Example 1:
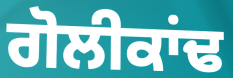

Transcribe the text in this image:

ਗੋਲੀਕਾਂਢ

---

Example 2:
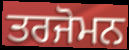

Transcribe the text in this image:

ਤਰਜੋਮਨ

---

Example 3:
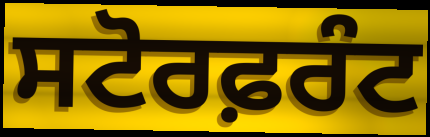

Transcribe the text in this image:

ਸਟੋਰਫ਼ਰੰਟ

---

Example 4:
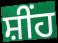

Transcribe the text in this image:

ਸ਼ੀਂਹ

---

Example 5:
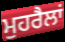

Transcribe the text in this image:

ਮੁਹਰੈਲਾਂ